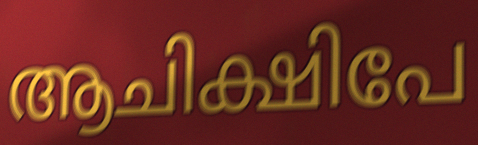
ആചിക്ഷിപേ